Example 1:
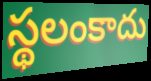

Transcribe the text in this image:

స్థలంకాదు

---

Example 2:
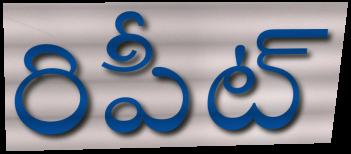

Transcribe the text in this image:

రిపీట్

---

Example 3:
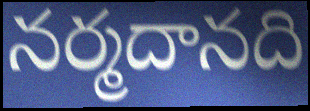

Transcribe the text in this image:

నర్మదానది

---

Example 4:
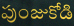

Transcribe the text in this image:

పుంజుకోడి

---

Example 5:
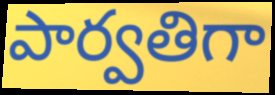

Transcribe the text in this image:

పార్వతిగా